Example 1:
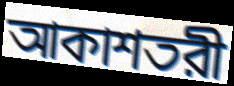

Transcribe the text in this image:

আকাশতরী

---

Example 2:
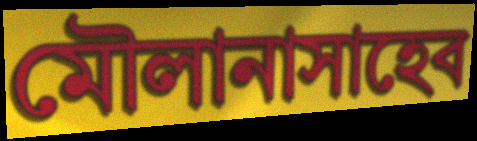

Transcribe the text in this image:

মৌলানাসাহেব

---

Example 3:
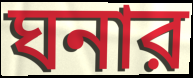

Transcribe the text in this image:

ঘনার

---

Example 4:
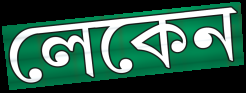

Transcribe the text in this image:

লেকেন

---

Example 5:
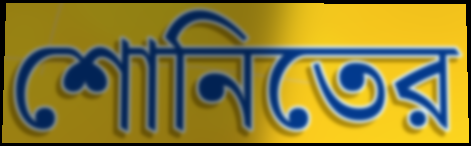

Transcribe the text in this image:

শোনিতের